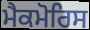
ਮੈਕਮੋਰਿਸ